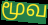
மூவ